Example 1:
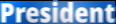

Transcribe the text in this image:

President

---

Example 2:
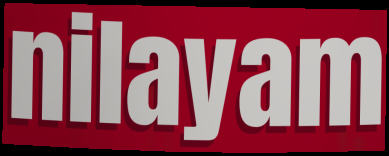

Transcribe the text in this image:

nilayam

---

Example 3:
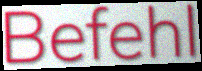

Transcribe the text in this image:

Befehl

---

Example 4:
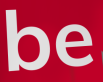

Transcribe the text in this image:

be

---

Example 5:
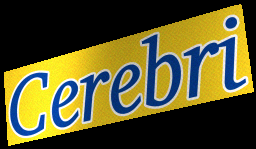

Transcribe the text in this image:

Cerebri